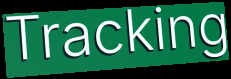
Tracking